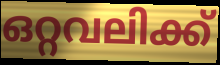
ഒറ്റവലിക്ക്